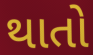
થાતો